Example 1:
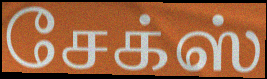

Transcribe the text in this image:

சேக்ஸ்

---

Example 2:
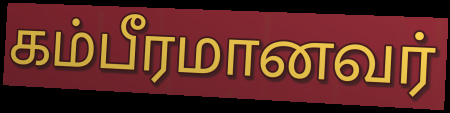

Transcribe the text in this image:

கம்பீரமானவர்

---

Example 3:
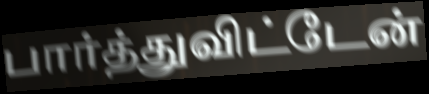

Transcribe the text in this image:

பார்த்துவிட்டேன்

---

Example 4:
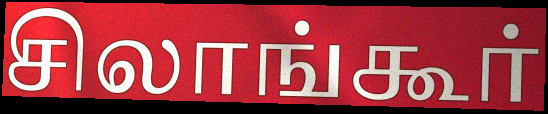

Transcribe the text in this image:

சிலாங்கூர்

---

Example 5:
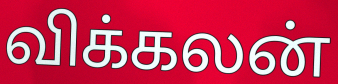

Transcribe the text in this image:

விக்கலன்